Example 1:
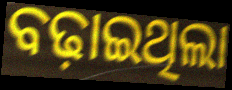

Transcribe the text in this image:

ବଢ଼ାଇଥିଲା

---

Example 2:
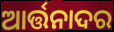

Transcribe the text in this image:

ଆର୍ତ୍ତନାଦର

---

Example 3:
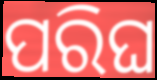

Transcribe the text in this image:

ପରିଘ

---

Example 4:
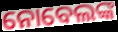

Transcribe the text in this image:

ନୋବେଲଙ୍କ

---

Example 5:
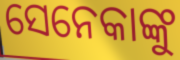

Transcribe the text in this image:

ସେନେକାଙ୍କୁ